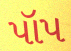
પૉપ